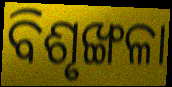
ବିଶୃଙ୍ଖଳା